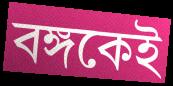
বঙ্গকেই